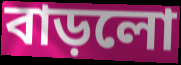
বাড়লো